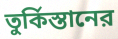
তুর্কিস্তানের